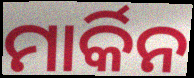
ମାର୍କିନ